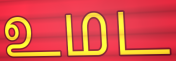
உமட